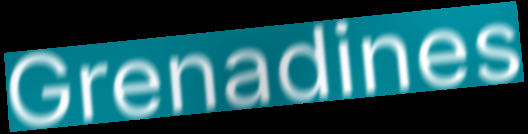
Grenadines